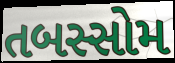
તબસ્સોમ